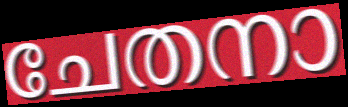
ചേതനാ